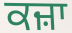
ਕਜ਼ਾ